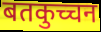
बतकुच्चन